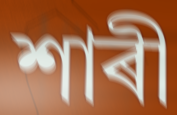
শাৰী